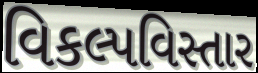
વિકલ્પવિસ્તાર